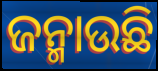
ଜନ୍ମାଉଛି